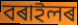
বৰাইলৰ